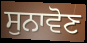
ਸੁਨਾਵੋਣ